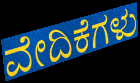
ವೇದಿಕೆಗಳು